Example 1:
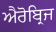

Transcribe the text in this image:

ਐਰੋਬ੍ਰਿਜ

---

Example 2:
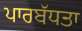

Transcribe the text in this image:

ਪਾਰਬੱਧਤਾ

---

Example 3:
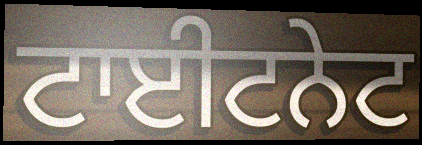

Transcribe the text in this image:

ਟਾਈਟਨੇਟ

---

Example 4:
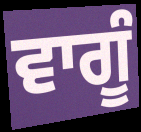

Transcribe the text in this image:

ਵਾਗੂੰ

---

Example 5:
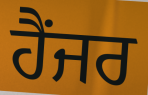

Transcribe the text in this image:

ਹੈਂਜਰ